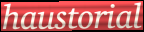
haustorial